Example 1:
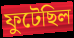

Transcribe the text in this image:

ফুটেছিল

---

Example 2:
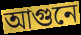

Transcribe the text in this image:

আগুনে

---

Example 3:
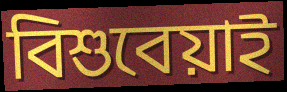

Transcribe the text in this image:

বিশুবেয়াই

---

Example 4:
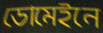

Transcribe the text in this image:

ডোমেইনে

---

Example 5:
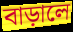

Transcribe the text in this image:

বাড়ালে